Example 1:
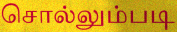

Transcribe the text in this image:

சொல்லும்படி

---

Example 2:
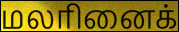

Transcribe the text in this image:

மலரினைக்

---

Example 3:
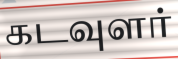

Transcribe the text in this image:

கடவுளர்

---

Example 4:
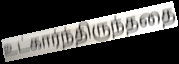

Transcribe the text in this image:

உட்கார்ந்திருந்ததை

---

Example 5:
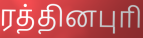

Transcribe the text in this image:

ரத்தினபுரி